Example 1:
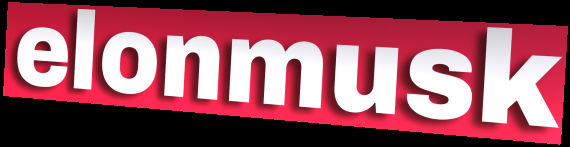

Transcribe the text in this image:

elonmusk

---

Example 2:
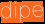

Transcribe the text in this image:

dipe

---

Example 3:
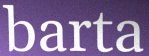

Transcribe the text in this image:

barta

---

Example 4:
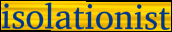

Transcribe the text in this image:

isolationist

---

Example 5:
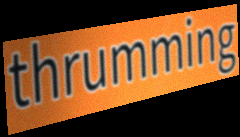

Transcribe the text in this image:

thrumming